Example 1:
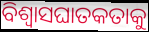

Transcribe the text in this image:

ବିଶ୍ୱାସଘାତକତାକୁ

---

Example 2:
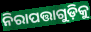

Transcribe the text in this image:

ନିରାପତ୍ତାଗୁଡ଼ିକୁ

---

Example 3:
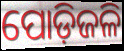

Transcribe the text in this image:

ପୋଡ଼ିଜଳି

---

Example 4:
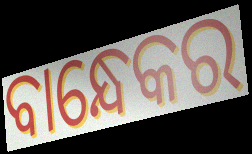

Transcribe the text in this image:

ବାନ୍ଧେକର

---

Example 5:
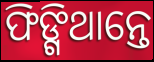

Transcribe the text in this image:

ଫିଙ୍ଗିଥାନ୍ତେ